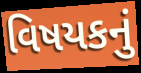
વિષયકનું